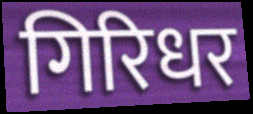
गिरिधर